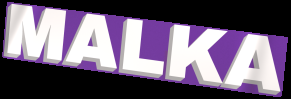
MALKA